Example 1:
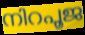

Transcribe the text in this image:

നിറപൂജ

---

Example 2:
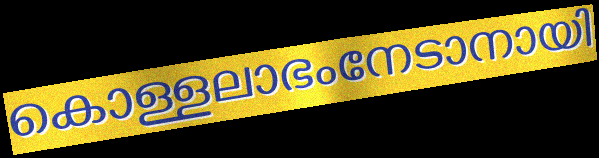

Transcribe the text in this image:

കൊള്ളലാഭംനേടാനായി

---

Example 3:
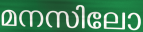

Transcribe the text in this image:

മനസിലോ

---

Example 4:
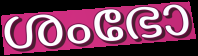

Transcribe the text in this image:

ശംഭോ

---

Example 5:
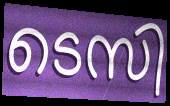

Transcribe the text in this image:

ടെസി